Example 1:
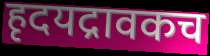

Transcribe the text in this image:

हृदयद्रावकच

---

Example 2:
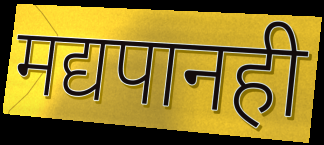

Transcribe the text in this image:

मद्यपानही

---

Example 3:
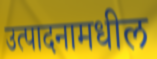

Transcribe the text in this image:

उत्पादनामधील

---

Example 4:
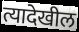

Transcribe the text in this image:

त्यादेखील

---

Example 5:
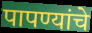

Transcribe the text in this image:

पापण्यांचे